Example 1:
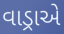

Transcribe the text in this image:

વાડ્રાએ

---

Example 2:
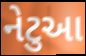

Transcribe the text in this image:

નેટુઆ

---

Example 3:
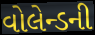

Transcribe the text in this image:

વોલેન્ડની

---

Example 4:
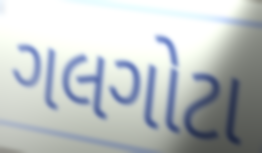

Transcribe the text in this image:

ગલગોટા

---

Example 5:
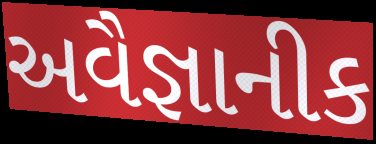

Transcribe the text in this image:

અવૈજ્ઞાનીક